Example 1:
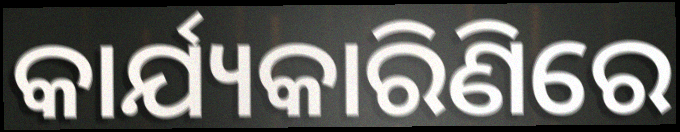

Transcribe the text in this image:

କାର୍ଯ୍ୟକାରିଣିରେ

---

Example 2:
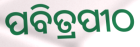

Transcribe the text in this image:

ପବିତ୍ରପୀଠ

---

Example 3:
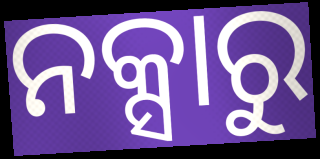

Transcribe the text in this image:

ନକ୍ସାରୁ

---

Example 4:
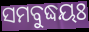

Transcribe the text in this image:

ସମବୁଦ୍ଧୟଃ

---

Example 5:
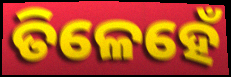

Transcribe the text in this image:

ତିଳେହେଁ